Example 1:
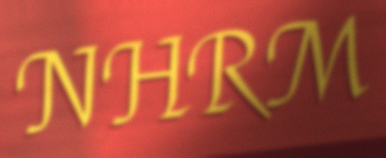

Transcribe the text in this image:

NHRM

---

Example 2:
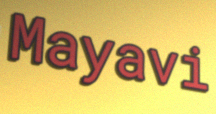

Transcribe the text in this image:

Mayavi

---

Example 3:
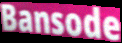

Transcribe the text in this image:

Bansode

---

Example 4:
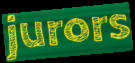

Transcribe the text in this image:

jurors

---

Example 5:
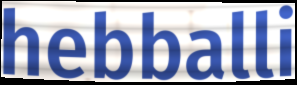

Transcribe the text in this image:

hebballi